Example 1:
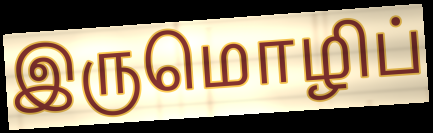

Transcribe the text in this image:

இருமொழிப்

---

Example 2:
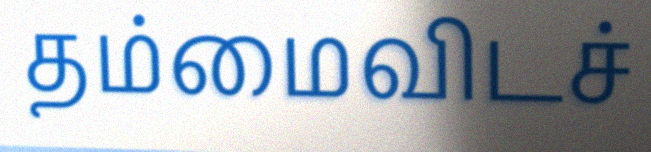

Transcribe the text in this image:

தம்மைவிடச்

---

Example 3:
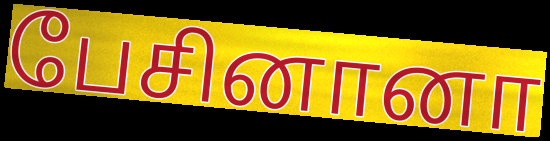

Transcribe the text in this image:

பேசினானா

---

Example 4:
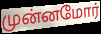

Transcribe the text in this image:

முன்னமோர்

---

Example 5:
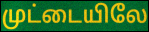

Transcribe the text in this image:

முட்டையிலே